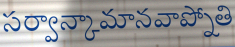
సర్వాన్కామానవాప్నోతి